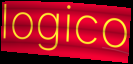
logico